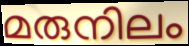
മരുനിലം